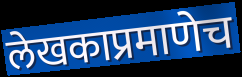
लेखकाप्रमाणेच